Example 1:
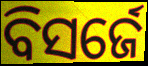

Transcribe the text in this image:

ବିସର୍ଜେ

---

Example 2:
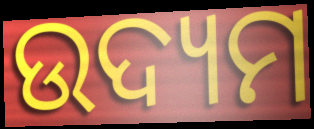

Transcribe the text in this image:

ଉଦ୍ୟମ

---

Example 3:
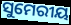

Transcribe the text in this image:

ସୁମେରୀୟ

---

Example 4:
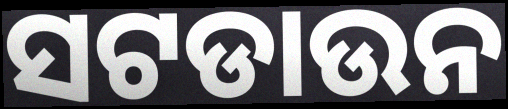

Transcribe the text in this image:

ସଟଡାଉନ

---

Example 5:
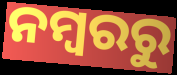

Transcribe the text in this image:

ନମ୍ବରରୁ